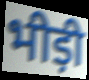
भीड़ी